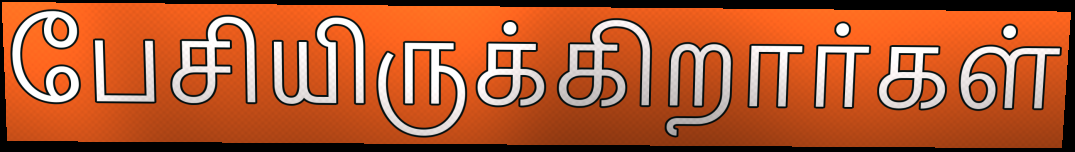
பேசியிருக்கிறார்கள்